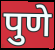
पुणे